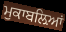
ਮੁਕਾਬਲ਼ਿਆਂ